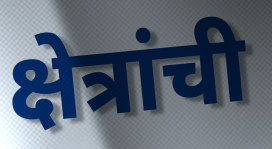
क्षेत्रांची